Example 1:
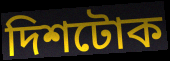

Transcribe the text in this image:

দিশটোক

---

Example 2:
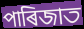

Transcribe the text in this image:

পাৰিজাত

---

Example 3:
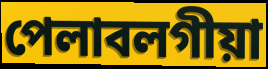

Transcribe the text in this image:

পেলাবলগীয়া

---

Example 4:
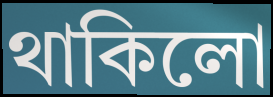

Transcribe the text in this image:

থাকিলো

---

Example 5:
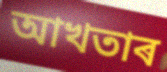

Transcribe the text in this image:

আখতাৰ